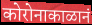
कोरोनाकाळानं